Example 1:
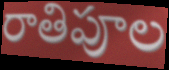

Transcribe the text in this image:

రాతిపూల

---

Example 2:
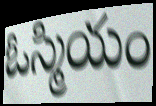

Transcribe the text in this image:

ఓస్మియం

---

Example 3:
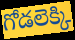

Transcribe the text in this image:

గోడలెక్కి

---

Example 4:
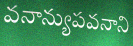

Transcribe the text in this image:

వనాన్యుపవనాని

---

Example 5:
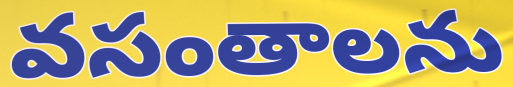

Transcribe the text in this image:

వసంతాలను